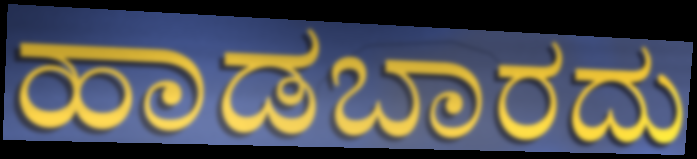
ಹಾಡಬಾರದು